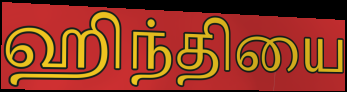
ஹிந்தியை